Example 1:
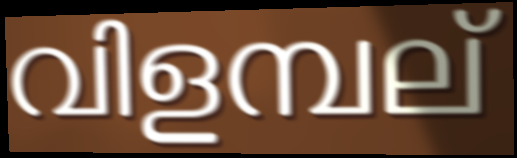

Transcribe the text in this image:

വിളമ്പല്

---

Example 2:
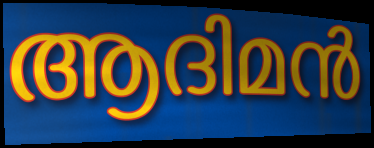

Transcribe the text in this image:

ആദിമൻ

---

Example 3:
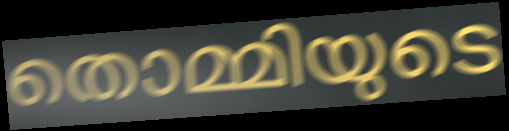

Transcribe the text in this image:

തൊമ്മിയുടെ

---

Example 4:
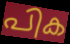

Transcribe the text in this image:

പിക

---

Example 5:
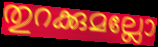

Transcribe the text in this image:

തുറക്കുമല്ലോ